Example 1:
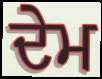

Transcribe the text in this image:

ਦੇਮ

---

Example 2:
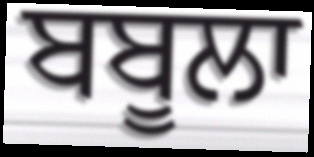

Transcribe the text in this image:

ਬਬੂਲਾ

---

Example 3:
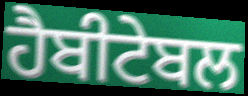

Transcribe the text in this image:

ਹੈਬੀਟੇਬਲ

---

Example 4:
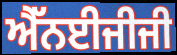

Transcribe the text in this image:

ਐੱਨਈਜੀਜੀ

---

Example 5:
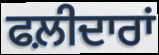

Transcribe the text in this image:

ਫਲ਼ੀਦਾਰਾਂ